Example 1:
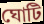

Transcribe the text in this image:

ঘোটি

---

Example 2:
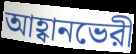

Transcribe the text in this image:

আহ্বানভেরী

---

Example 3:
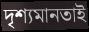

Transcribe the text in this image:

দৃশ্যমানতাই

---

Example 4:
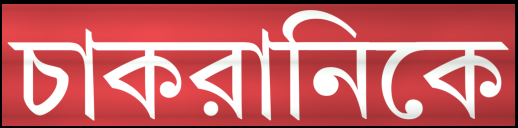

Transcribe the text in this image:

চাকরানিকে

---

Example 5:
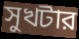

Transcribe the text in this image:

সুখটার